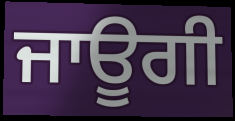
ਜਾਊਗੀ